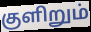
குளிறும்